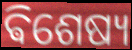
ଵିଶେଷ୍ୟ